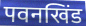
पवनखिंड